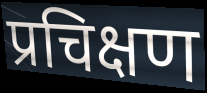
प्रचिक्षण